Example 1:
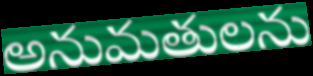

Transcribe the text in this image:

అనుమతులను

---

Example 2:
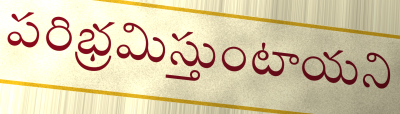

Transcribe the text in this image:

పరిభ్రమిస్తుంటాయని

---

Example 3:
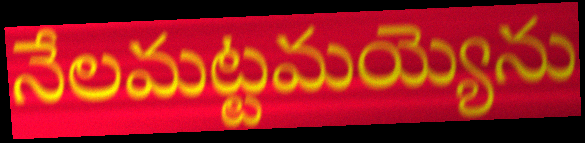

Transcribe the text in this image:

నేలమట్టమయ్యెను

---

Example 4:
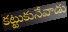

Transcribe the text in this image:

కట్టుకునేవాడు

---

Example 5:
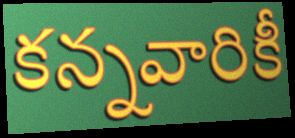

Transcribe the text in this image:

కన్నవారికీ